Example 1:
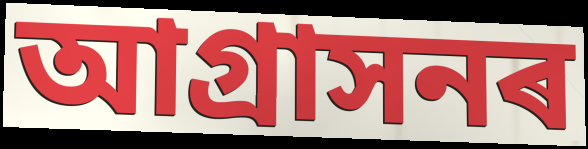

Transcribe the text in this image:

আগ্ৰাসনৰ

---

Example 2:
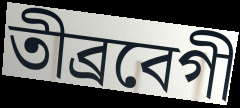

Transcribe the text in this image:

তীব্ৰবেগী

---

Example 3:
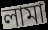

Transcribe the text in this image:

লামা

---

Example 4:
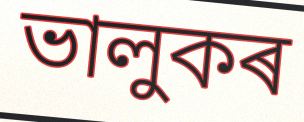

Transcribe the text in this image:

ভালুকৰ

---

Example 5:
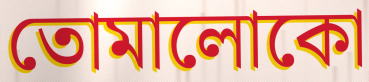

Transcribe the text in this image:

তোমালোকো